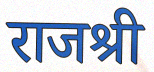
राजश्री